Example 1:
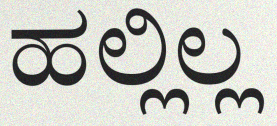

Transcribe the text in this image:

ಹಲ್ಲಿಲ್ಲ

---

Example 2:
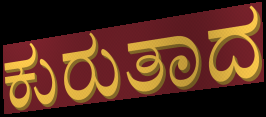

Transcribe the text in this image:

ಕುರುತಾದ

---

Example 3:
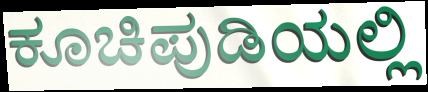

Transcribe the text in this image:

ಕೂಚಿಪುಡಿಯಲ್ಲಿ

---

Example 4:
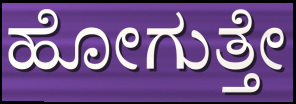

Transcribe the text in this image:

ಹೋಗುತ್ತೇ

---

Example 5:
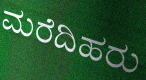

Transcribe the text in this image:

ಮರೆದಿಹರು